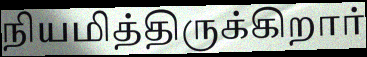
நியமித்திருக்கிறார்